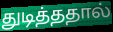
துடித்ததால்